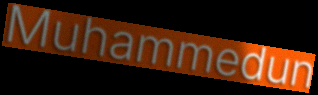
Muhammedun